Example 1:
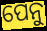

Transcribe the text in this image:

ପେନୁ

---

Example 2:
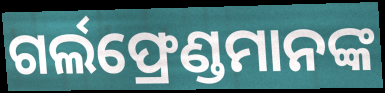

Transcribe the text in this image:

ଗର୍ଲଫ୍ରେଣ୍ଡମାନଙ୍କ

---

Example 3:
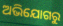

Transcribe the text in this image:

ଅଭିଯୋଗରୁ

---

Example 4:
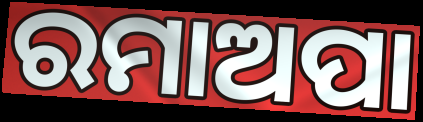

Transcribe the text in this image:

ରମାଅପା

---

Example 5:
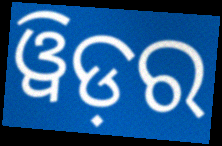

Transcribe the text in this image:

ୱିଡ଼ର